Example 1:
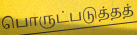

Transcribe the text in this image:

பொருட்படுத்தத்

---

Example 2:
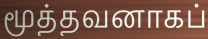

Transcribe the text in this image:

மூத்தவனாகப்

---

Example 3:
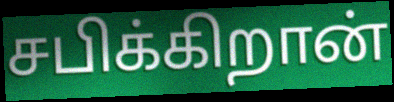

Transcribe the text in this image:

சபிக்கிறான்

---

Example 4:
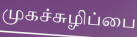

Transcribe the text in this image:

முகச்சுழிப்பை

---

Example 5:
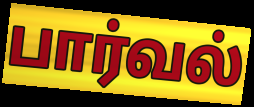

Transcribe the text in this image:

பார்வல்